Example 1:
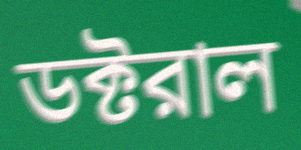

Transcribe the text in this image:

ডক্টরাল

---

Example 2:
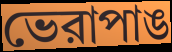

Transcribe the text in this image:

ভেরাপাঙ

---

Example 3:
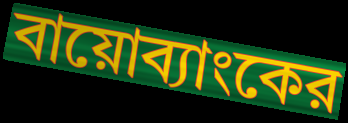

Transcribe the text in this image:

বায়োব্যাংকের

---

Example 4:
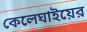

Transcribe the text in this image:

কেলেঘাইয়ের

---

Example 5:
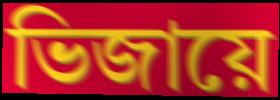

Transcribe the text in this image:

ভিজায়ে